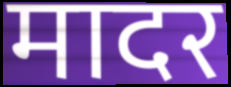
मादर